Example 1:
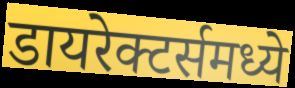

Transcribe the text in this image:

डायरेक्टर्समध्ये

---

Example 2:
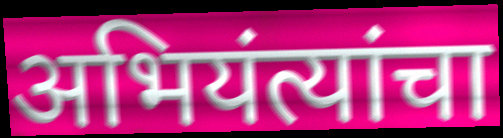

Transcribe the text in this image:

अभियंत्यांचा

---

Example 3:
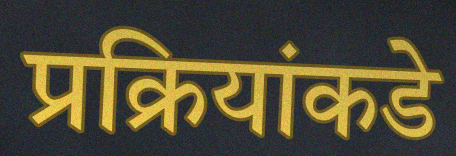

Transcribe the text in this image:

प्रक्रियांकडे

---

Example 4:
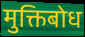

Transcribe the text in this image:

मुक्तिबोध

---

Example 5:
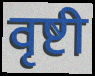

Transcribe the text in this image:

वृष्टी